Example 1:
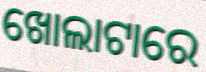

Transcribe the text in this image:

ଖୋଲାଟାରେ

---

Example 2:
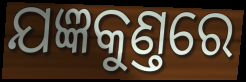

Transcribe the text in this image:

ଯଜ୍ଞକୁଣ୍ତରେ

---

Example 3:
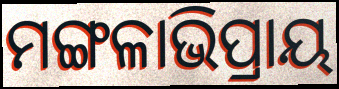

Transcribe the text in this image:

ମଙ୍ଗଳାଭିପ୍ରାୟ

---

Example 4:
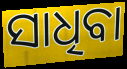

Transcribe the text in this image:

ସାଧିବା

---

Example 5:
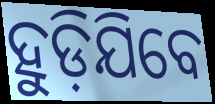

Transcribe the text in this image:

ହୁଡ଼ିଯିବେ